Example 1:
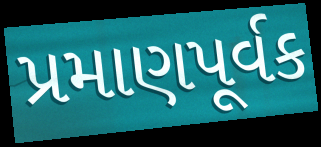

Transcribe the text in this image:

પ્રમાણપૂર્વક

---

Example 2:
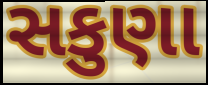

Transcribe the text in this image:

સકુણા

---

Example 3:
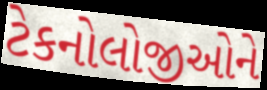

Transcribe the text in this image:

ટેકનોલોજીઓને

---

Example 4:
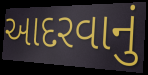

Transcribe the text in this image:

આદરવાનું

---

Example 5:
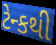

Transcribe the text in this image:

ટેન્કથી